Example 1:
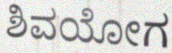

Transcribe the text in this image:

ಶಿವಯೋಗ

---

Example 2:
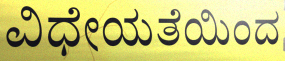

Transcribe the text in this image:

ವಿಧೇಯತೆಯಿಂದ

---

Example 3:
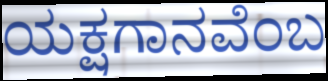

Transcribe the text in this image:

ಯಕ್ಷಗಾನವೆಂಬ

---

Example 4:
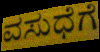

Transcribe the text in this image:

ವಸುಧೆಗೆ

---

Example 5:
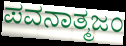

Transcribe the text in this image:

ಪವನಾತ್ಮಜಂ